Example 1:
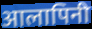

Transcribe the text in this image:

आलापिनी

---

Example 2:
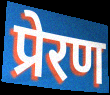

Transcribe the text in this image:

प्रेरण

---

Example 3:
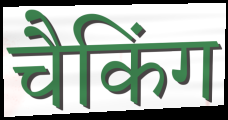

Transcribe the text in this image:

चैकिंग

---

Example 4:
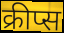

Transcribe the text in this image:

क्रीप्स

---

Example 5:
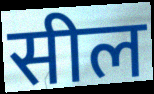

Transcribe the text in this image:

सील